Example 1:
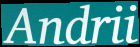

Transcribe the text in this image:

Andrii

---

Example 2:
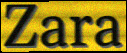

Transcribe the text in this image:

Zara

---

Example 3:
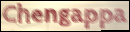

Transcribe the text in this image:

Chengappa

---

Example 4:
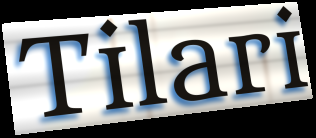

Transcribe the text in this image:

Tilari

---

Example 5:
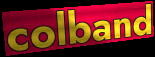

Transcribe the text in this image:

colband